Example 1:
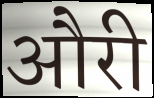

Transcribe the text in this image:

औरी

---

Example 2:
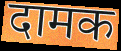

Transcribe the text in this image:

दामक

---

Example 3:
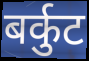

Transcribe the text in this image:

बर्कुट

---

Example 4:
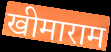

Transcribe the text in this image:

खीमाराम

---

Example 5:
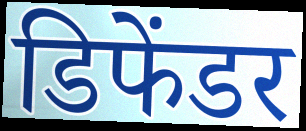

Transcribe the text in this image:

डिफेंडर